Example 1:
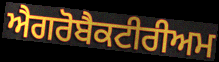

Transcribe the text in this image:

ਐਗਰੋਬੈਕਟੀਰੀਅਮ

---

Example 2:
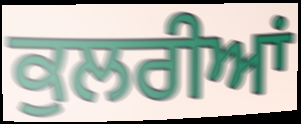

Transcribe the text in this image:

ਕੁਲਰੀਆਂ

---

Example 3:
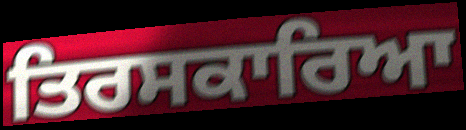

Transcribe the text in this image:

ਤਿਰਸਕਾਰਿਆ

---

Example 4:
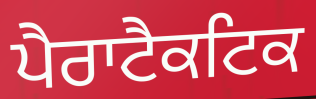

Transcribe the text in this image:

ਪੈਰਾਟੈਕਟਿਕ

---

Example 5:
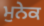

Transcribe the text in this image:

ਮੁਨੇਕ